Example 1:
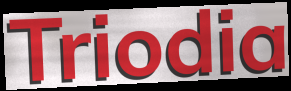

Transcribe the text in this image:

Triodia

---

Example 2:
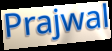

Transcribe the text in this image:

Prajwal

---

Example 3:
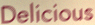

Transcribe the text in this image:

Delicious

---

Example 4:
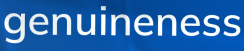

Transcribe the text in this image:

genuineness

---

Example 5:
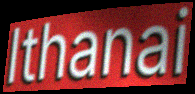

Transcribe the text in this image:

Ithanai